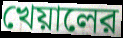
খেয়ালের